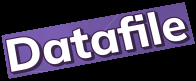
Datafile